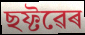
ছফ্টৱেৰ